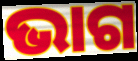
ଭାଗ